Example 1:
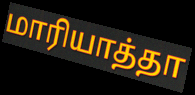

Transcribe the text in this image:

மாரியாத்தா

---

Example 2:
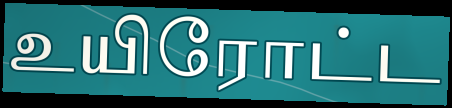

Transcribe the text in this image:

உயிரோட்ட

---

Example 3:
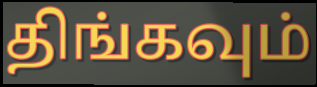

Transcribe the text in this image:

திங்கவும்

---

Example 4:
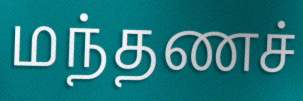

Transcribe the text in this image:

மந்தணச்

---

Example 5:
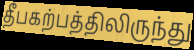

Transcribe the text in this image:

தீபகற்பத்திலிருந்து